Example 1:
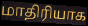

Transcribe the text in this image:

மாதிரியாக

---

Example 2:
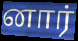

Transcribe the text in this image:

னார்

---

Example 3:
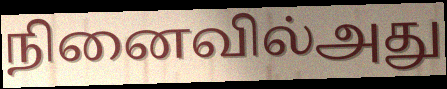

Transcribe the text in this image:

நினைவில்அது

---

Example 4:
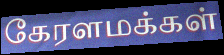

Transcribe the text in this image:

கேரளமக்கள்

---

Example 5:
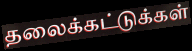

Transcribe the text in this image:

தலைக்கட்டுக்கள்